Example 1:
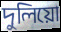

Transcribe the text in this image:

দুলিয়ো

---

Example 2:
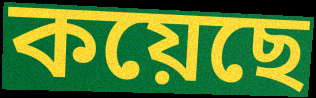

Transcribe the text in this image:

কয়েছে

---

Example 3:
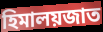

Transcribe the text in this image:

হিমালয়জাত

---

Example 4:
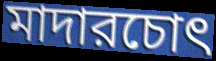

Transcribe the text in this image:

মাদারচোৎ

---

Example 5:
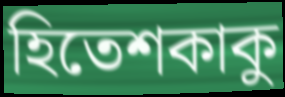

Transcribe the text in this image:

হিতেশকাকু